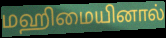
மஹிமையினால்